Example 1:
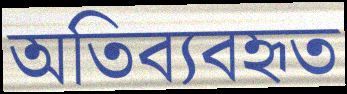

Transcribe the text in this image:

অতিব্যবহৃত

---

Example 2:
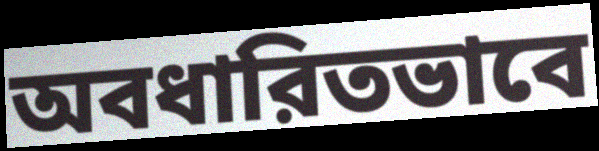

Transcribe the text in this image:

অবধারিতভাবে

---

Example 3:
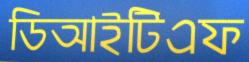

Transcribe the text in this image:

ডিআইটিএফ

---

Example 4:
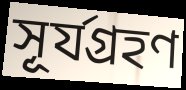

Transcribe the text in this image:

সূর্যগ্রহণ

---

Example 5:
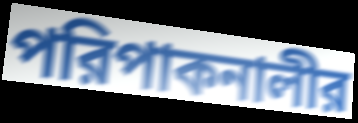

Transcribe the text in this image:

পরিপাকনালীর